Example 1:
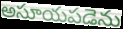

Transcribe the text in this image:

అసూయపడెను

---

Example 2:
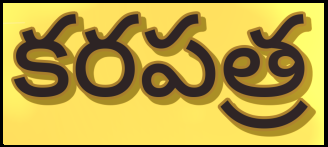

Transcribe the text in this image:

కరపత్ర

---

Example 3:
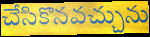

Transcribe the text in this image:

చేసికొనవచ్చును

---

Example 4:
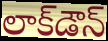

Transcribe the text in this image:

లాక్‌డౌన్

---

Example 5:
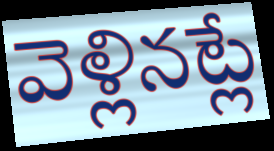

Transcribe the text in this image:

వెళ్లినట్లే